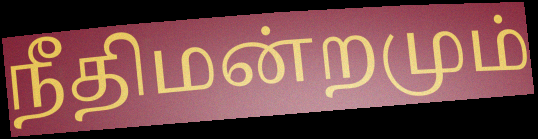
நீதிமன்றமும்